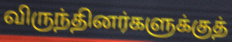
விருந்தினர்களுக்குத்